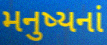
મનુષ્યનાં